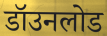
डॉउनलोड